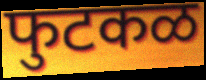
फुटकळ